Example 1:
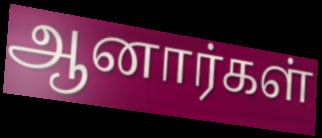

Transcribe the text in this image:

ஆனார்கள்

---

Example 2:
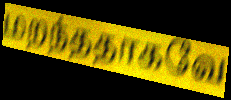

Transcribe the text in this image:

மறந்ததாகவே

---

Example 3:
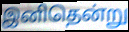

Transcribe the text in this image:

இனிதென்று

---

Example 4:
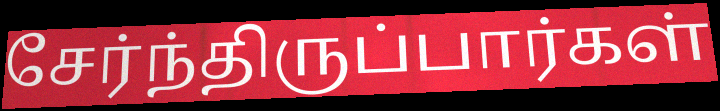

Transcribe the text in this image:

சேர்ந்திருப்பார்கள்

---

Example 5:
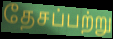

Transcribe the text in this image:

தேசப்பற்று